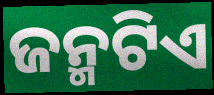
ଜନ୍ମଟିଏ